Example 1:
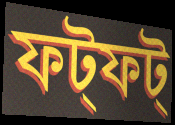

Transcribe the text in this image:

ফট্ফট্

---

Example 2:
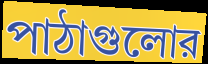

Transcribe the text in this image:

পাঠাগুলোর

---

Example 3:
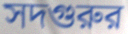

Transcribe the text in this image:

সদগুরুর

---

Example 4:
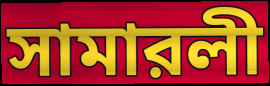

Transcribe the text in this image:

সামারলী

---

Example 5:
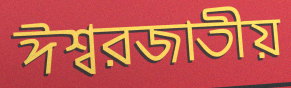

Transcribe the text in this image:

ঈশ্বরজাতীয়